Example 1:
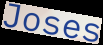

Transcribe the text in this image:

Joses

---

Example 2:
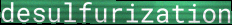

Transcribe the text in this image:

desulfurization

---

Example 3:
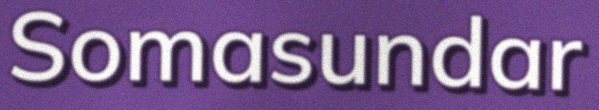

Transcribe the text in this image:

Somasundar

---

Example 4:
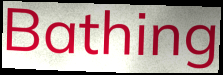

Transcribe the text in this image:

Bathing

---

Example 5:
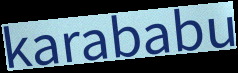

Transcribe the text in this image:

karababu